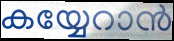
കയ്യേറാൻ